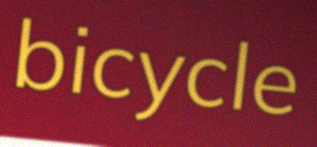
bicycle